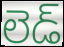
లెడ్